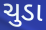
ચુડા